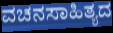
ವಚನಸಾಹಿತ್ಯದ